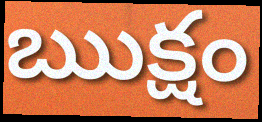
ఋక్షం